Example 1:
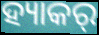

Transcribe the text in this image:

ହ୍ୟାକର୍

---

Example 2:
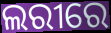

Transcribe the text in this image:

ଲରୀରେ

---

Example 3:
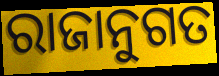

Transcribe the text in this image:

ରାଜାନୁଗତ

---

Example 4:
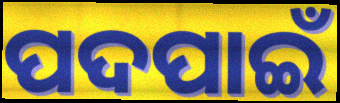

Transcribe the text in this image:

ପଦପାଇଁ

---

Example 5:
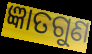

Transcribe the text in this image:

ଜ୍ଞାତଗୁଣ